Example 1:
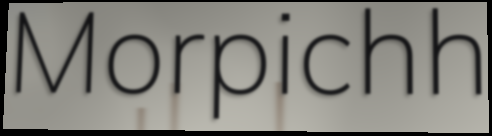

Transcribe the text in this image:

Morpichh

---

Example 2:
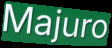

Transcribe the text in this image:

Majuro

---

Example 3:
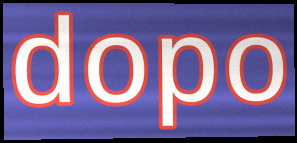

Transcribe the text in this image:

dopo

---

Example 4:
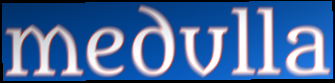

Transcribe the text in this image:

medulla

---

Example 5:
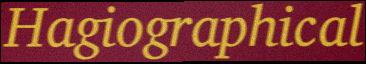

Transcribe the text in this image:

Hagiographical